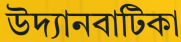
উদ্যানবাটিকা